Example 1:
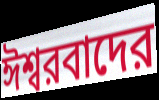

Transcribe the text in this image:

ঈশ্বরবাদের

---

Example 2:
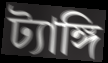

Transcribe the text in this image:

ট্যাঙ্গি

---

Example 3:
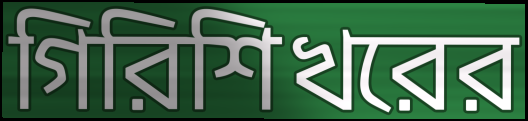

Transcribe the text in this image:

গিরিশিখরের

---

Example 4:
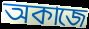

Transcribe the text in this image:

অকাজে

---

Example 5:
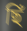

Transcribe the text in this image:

ছিঁ